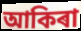
আকিৰা